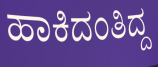
ಹಾಕಿದಂತಿದ್ದ